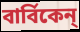
বার্বিকেন্